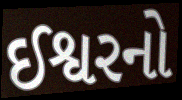
ઈશ્વરનો